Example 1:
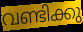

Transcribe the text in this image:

വണ്ടിക്കു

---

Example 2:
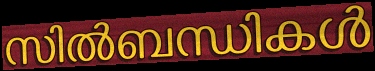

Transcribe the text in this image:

സിൽബന്ധികൾ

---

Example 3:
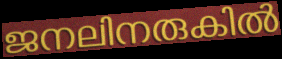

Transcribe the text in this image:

ജനലിനരുകിൽ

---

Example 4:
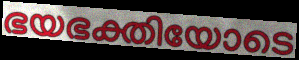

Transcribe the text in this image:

ഭയഭക്തിയോടെ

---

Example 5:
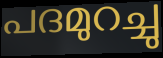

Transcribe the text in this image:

പദമുറച്ചു